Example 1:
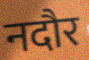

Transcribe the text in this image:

नदौर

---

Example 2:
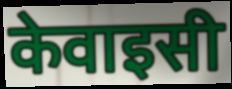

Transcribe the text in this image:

केवाइसी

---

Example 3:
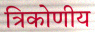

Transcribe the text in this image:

त्रिकोणीय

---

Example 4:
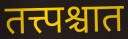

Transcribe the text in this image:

तत्त्पश्चात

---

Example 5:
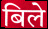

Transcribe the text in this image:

बिले